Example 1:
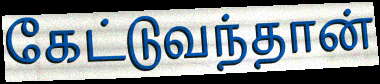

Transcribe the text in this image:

கேட்டுவந்தான்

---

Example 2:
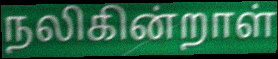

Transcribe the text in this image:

நலிகின்றாள்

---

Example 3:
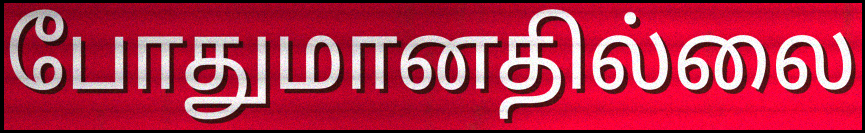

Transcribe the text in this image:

போதுமானதில்லை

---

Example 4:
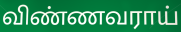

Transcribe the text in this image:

விண்ணவராய்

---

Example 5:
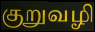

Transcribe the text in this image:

குறுவழி